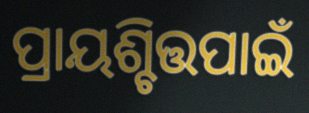
ପ୍ରାୟଶ୍ଚିତ୍ତପାଇଁ